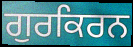
ਗੁਰਕਿਰਨ